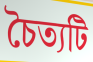
চৈত্যটি